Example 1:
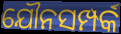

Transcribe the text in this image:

ଯୌନସମ୍ପର୍କ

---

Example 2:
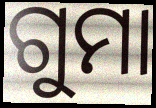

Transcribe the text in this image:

ଗୁମା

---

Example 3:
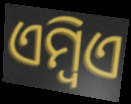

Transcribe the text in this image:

ଏମ୍ବିଏ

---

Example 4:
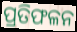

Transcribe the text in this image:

ପ୍ରତିଫଳନ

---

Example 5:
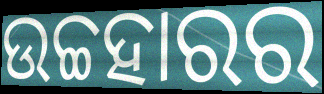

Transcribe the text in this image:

ଉଚ୍ଚହାରର